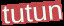
tutun